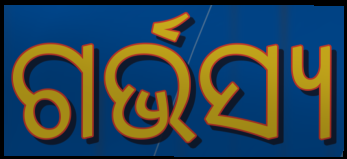
ଗର୍ଭସ୍ୟ